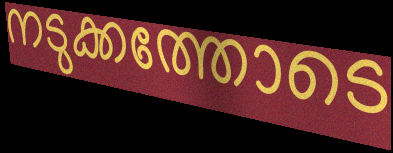
നടുക്കത്തോടെ